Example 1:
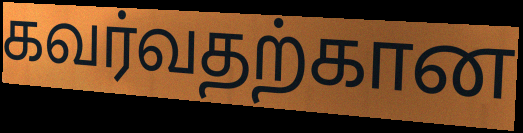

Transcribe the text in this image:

கவர்வதற்கான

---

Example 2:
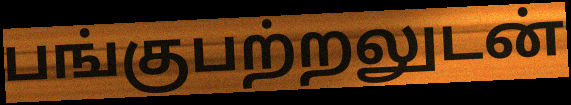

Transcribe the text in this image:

பங்குபற்றலுடன்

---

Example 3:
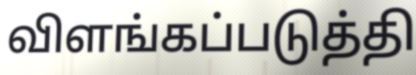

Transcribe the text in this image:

விளங்கப்படுத்தி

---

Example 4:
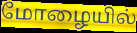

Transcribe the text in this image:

மோழையில்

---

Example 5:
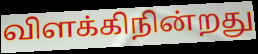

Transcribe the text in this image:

விளக்கிநின்றது